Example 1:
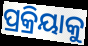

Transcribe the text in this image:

ପ୍ରକ୍ରିୟାକୁ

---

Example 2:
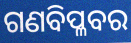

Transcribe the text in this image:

ଗଣବିପ୍ଳବର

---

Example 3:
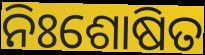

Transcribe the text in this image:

ନିଃଶୋଷିତ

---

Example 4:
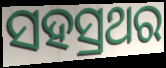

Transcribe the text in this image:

ସହସ୍ରଥର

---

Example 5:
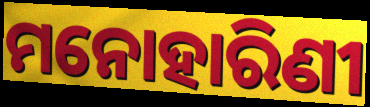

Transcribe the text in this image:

ମନୋହାରିଣୀ